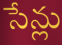
సేన్లు